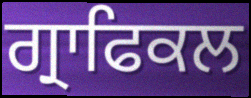
ਗ੍ਰਾਫਿਕਲ